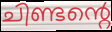
ചിണ്ടന്റെ